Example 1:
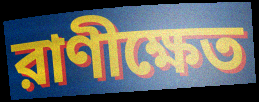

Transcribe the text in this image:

রাণীক্ষেত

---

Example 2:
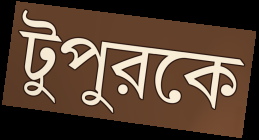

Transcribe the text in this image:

টুপুরকে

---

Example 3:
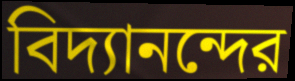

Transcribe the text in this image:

বিদ্যানন্দের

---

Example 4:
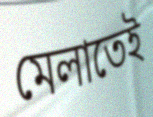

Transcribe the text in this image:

মেলাতেই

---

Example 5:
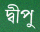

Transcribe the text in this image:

দ্বীপু